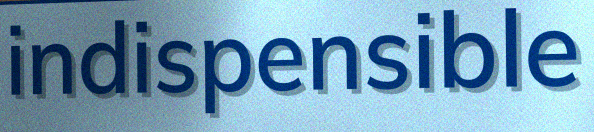
indispensible